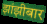
झांझीबार